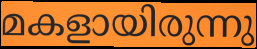
മകളായിരുന്നു